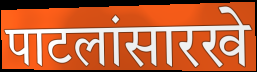
पाटलांसारखे